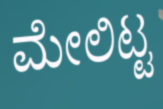
ಮೇಲಿಟ್ಟ